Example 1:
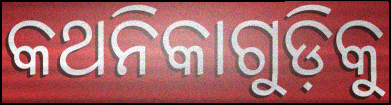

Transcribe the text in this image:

କଥନିକାଗୁଡ଼ିକୁ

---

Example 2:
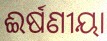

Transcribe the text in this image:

ଈର୍ଷଣୀୟା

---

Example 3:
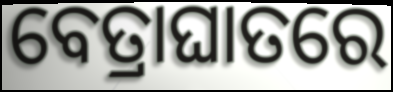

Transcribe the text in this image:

ବେତ୍ରାଘାତରେ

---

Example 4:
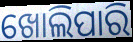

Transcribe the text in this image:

ଖୋଲିପାରି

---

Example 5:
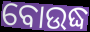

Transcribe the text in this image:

ବୋଉଦ୍ଧ